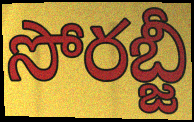
సోరబ్జీ